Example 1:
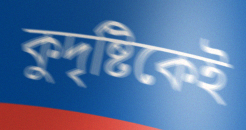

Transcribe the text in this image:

কুদৃষ্টিকেই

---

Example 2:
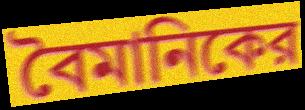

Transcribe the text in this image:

বৈমানিকের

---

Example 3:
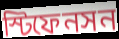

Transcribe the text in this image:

স্টিফেনসন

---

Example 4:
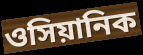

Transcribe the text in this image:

ওসিয়ানিক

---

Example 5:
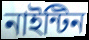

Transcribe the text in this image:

নাইন্টিন